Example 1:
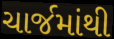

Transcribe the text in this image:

ચાર્જમાંથી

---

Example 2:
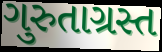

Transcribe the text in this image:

ગુરુતાગ્રસ્ત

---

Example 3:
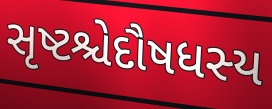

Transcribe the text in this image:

સૃષ્ટશ્ચેદૌષધસ્ય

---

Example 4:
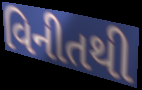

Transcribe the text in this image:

વિનીતથી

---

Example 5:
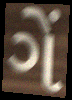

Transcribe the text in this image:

ગેં